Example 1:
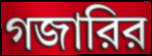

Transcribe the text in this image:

গজারির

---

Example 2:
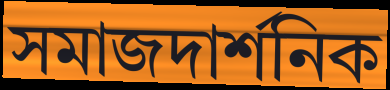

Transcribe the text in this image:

সমাজদার্শনিক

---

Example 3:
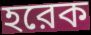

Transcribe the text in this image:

হরেক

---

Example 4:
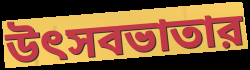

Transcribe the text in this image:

উৎসবভাতার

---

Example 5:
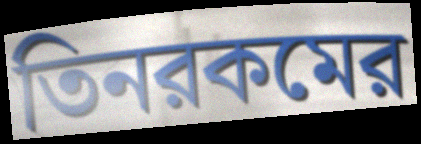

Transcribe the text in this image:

তিনরকমের